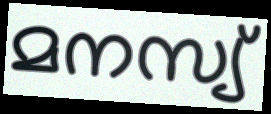
മനസ്യ്